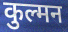
कुल्मन